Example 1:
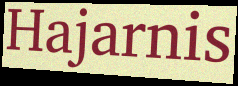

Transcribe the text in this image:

Hajarnis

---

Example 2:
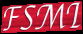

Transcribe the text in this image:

FSMI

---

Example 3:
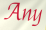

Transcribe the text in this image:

Any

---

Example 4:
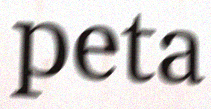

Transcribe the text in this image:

peta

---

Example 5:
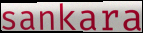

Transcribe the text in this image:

sankara